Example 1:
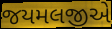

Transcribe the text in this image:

જયમલજીએ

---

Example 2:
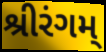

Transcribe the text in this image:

શ્રીરંગમ્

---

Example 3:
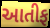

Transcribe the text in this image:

આતીફ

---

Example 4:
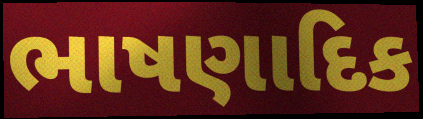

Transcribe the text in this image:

ભાષણાદિક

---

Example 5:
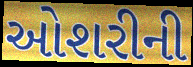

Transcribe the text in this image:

ઓશરીની